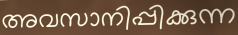
അവസാനിപ്പിക്കുന്ന